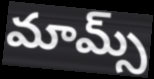
మామ్స్